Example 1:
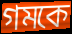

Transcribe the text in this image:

গমকে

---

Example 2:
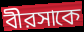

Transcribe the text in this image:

বীরসাকে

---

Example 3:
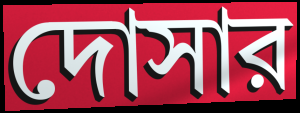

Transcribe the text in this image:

দোসার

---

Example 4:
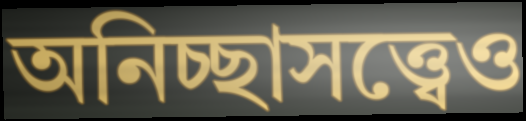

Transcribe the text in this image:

অনিচ্ছাসত্ত্বেও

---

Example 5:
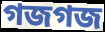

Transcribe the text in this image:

গজগজ